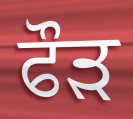
ਫੌਡ਼